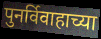
पुनर्विवाहाच्या